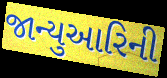
જાન્યુઆરિની